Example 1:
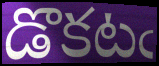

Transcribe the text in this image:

డొకటఁ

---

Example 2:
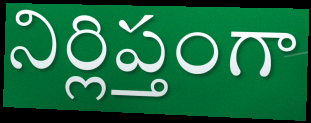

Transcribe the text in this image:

నిర్లిప్తంగా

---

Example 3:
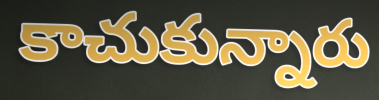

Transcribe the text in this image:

కాచుకున్నారు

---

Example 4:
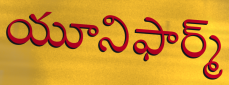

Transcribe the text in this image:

యూనిఫార్మ్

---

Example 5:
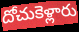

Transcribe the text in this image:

దోచుకెళ్లారు